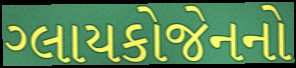
ગ્લાયકોજેનનો